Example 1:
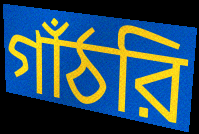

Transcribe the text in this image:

গাঁঠরি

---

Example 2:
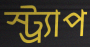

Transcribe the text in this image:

স্ট্র্যাপ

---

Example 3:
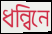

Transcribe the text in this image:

ধন্বিনে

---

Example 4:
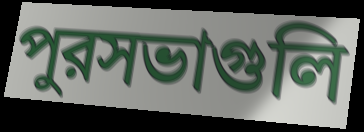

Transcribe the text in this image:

পুরসভাগুলি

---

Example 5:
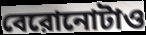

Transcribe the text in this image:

বেরোনোটাও